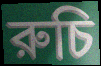
রুচি